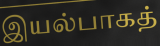
இயல்பாகத்